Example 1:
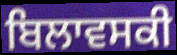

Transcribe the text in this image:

ਬਿਲਾਵਸਕੀ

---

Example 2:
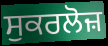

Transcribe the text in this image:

ਸੁਕਰਲੋਜ਼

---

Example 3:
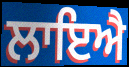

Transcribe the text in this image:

ਲਾਇਐ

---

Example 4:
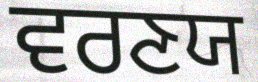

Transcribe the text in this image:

ਵਰਣਯ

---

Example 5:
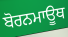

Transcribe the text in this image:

ਬੋਰਨਮਾਊਥ